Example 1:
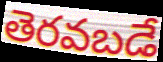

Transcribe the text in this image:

తెరవబడే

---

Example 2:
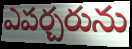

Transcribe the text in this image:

ఎపర్చరును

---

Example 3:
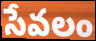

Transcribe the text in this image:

సేవలం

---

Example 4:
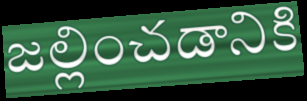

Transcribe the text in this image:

జల్లించడానికి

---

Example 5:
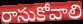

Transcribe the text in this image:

రాసుకోవాలి